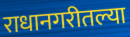
राधानगरीतल्या